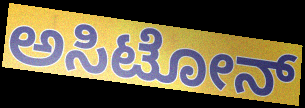
ಅಸಿಟೋನ್